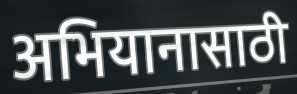
अभियानासाठी